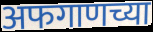
अफगाणच्या